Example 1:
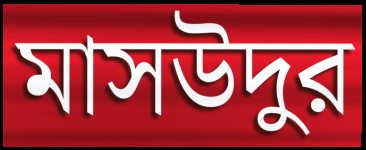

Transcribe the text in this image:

মাসউদুর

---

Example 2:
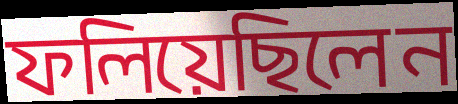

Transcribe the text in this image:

ফলিয়েছিলেন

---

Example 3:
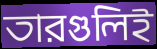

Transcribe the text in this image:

তারগুলিই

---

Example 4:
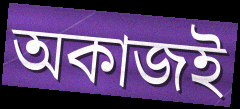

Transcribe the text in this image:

অকাজই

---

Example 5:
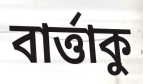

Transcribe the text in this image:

বার্ত্তাকু